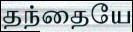
தந்தையே